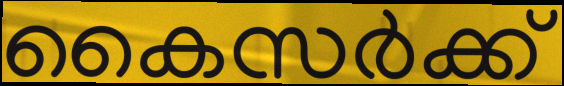
കൈസർക്ക്